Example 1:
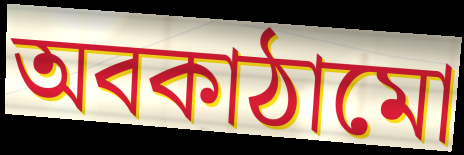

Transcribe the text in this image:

অবকাঠামো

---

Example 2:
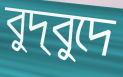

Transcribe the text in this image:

বুদ্‌বুদে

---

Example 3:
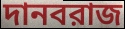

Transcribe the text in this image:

দানবরাজ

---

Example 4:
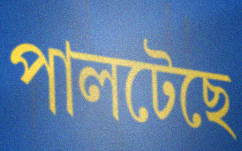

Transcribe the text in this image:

পালটেছে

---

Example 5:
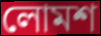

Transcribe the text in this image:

লোমশ